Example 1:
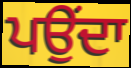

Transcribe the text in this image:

ਪਉਂਦਾ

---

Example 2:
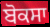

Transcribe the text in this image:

ਬੋਕਸਾ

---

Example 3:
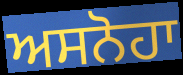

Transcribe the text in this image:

ਅਸਨੋਹਾ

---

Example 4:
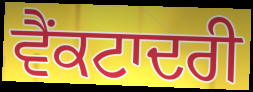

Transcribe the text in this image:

ਵੈਂਕਟਾਦਰੀ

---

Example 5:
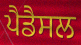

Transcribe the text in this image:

ਪੈਡੈਸਲ